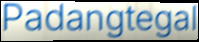
Padangtegal